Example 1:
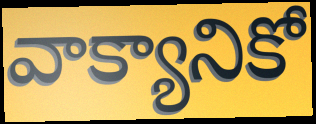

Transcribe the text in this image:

వాక్యానికో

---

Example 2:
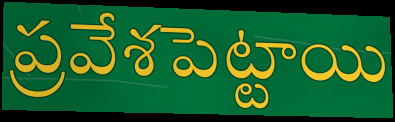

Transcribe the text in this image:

ప్రవేశపెట్టాయి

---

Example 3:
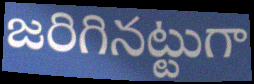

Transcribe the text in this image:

జరిగినట్టుగా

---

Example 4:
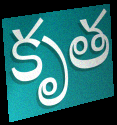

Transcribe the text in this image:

కృత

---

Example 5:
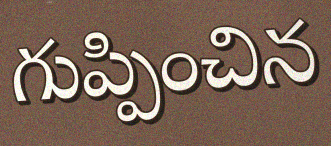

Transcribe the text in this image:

గుప్పించిన